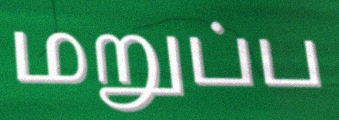
மறுப்ப